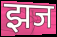
झज